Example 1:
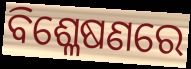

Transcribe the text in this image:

ବିଶ୍ଳେଷଣରେ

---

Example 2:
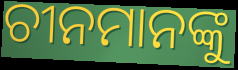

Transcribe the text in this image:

ଚୀନମାନଙ୍କୁ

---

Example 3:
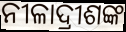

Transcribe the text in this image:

ନୀଳାଦ୍ରୀଶଙ୍କ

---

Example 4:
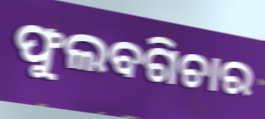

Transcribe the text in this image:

ଫୁଲବଗିଚାର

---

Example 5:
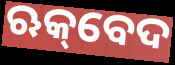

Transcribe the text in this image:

ଋକ୍‌ବେଦ